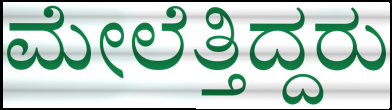
ಮೇಲೆತ್ತಿದ್ದರು